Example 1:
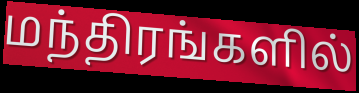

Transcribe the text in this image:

மந்திரங்களில்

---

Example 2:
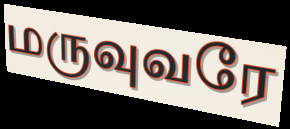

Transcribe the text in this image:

மருவுவரே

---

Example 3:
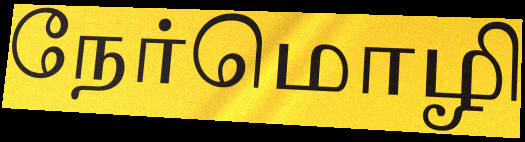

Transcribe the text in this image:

நேர்மொழி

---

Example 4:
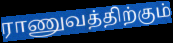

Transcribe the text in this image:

ராணுவத்திற்கும்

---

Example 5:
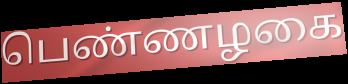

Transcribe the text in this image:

பெண்ணழகை